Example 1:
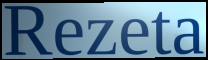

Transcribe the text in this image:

Rezeta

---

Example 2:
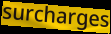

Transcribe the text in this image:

surcharges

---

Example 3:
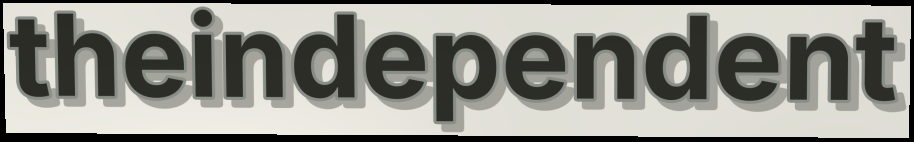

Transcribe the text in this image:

theindependent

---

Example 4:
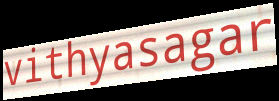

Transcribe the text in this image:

vithyasagar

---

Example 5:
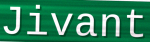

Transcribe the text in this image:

Jivant